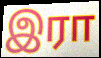
இரா